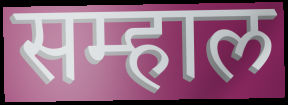
सम्हाल